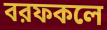
বরফকলে